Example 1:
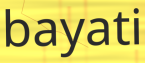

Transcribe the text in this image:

bayati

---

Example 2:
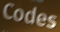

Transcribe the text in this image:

Codes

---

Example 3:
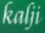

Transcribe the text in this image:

kalji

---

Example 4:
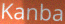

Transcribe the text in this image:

Kanba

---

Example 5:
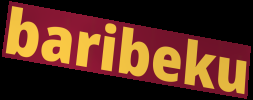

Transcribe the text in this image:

baribeku